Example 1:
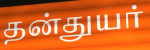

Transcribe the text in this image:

தன்துயர்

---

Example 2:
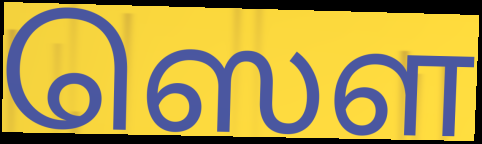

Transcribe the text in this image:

ஸௌ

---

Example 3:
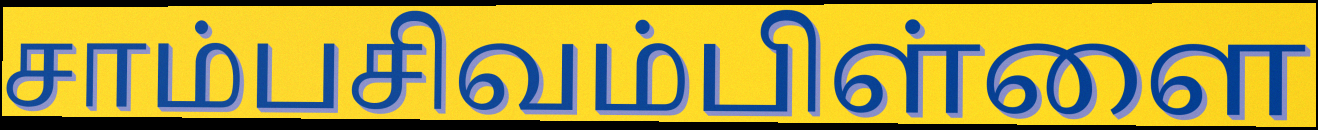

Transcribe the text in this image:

சாம்பசிவம்பிள்ளை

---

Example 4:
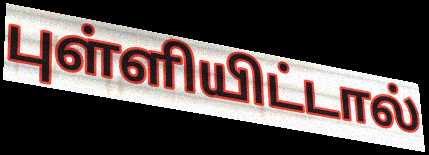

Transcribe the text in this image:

புள்ளியிட்டால்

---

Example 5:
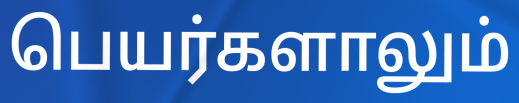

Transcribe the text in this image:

பெயர்களாலும்